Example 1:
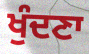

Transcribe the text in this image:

ਖੁੰਦਣਾ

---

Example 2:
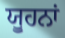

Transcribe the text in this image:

ਯੂਹਨਾਂ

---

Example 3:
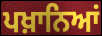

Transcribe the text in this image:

ਪਖ਼ਾਨਿਆਂ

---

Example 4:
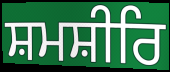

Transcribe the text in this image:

ਸ਼ਮਸ਼ੀਰਿ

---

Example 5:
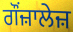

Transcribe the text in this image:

ਗੌਂਜ਼ਾਲੇਜ਼